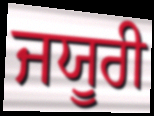
ਜਯੂਰੀ